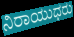
ನಿರಾಯುಧರು